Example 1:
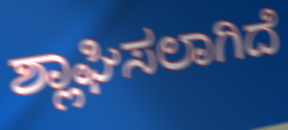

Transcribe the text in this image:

ಶ್ಲಾಘಿಸಲಾಗಿದೆ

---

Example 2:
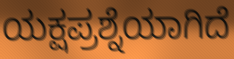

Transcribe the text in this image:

ಯಕ್ಷಪ್ರಶ್ನೆಯಾಗಿದೆ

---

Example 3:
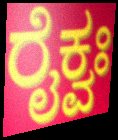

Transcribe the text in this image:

ರೈಕ್ವಃ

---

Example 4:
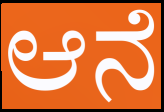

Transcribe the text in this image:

ಆನೆ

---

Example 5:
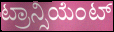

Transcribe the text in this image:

ಟ್ರಾನ್ಸಿಯೆಂಟ್